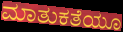
ಮಾತುಕತೆಯೂ